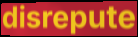
disrepute